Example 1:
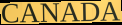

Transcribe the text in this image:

CANADA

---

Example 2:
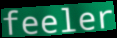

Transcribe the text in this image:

feeler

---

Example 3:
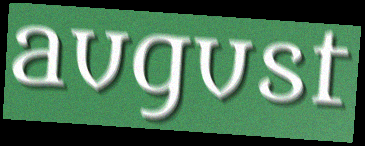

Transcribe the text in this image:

august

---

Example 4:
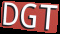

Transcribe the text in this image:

DGT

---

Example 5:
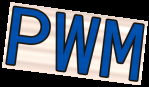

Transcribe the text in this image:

PWM